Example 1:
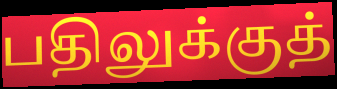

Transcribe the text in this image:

பதிலுக்குத்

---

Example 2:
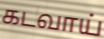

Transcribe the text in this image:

கடவாய்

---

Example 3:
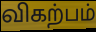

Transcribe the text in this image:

விகற்பம்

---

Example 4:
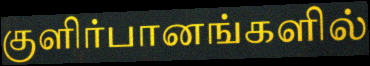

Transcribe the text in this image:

குளிர்பானங்களில்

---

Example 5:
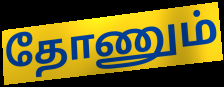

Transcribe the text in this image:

தோணும்